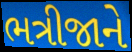
ભત્રીજાને